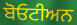
ਬੋਓਟੀਅਨ